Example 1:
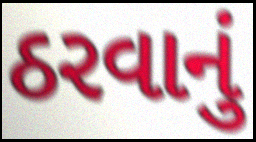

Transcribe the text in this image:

ઠરવાનું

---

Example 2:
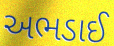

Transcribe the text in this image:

અભડાઈ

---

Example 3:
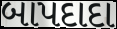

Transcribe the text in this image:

બાપદાદા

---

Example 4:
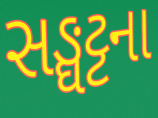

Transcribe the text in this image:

સઙ્ઘટ્ટના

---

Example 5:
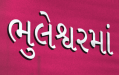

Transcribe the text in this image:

ભુલેશ્વરમાં